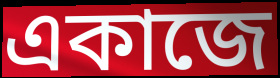
একাজে